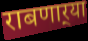
राबणार्या